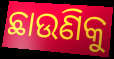
ଛାଉଣିକୁ